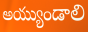
అయ్యుండాలి